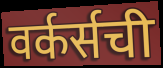
वर्कर्सची